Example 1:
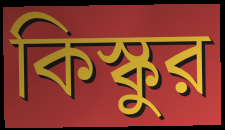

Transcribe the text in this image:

কিস্কুর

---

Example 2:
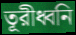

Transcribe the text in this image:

তূরীধ্বনি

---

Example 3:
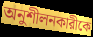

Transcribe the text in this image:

অনুশীলনকারীকে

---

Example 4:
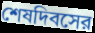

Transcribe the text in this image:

শেষদিবসের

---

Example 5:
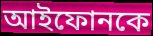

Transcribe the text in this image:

আইফোনকে